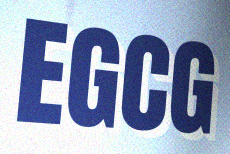
EGCG